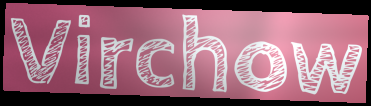
Virchow